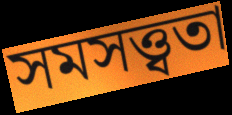
সমসত্ত্বতা